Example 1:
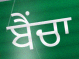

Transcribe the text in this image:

ਬੈਂਚਾ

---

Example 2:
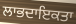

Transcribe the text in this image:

ਲਾਭਦਾਇਕਤਾ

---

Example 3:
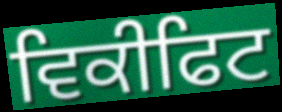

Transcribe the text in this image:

ਵਿਕੀਫਿਟ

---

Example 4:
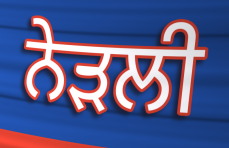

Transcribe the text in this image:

ਨੇੜਲੀ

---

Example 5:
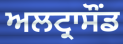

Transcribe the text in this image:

ਅਲਟ੍ਰਾਸੌਂਡ